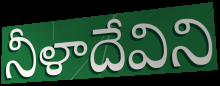
నీళాదేవిని